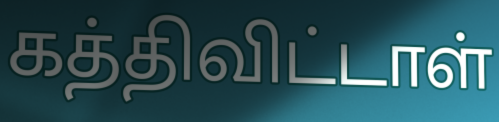
கத்திவிட்டாள்